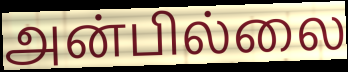
அன்பில்லை